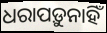
ଧରାପଡ଼ୁନାହିଁ